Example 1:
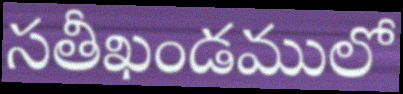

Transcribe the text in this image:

సతీఖండములో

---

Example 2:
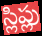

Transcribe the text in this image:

స్లిప్లు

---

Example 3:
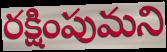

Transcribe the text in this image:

రక్షింపుమని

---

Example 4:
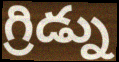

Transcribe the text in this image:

గ్రిడ్ను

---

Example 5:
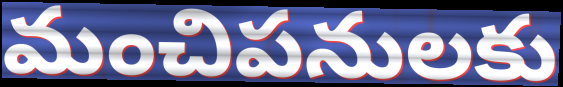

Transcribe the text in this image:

మంచిపనులకు